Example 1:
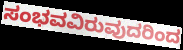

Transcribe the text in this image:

ಸಂಭವವಿರುವುದರಿಂದ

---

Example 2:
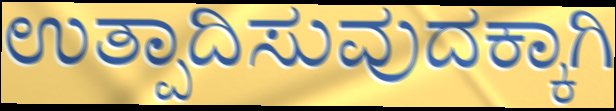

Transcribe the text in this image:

ಉತ್ಪಾದಿಸುವುದಕ್ಕಾಗಿ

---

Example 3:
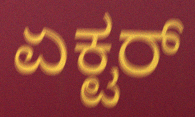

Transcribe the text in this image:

ಏಕ್ಟರ್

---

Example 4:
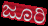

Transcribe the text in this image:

ಜೂರಿ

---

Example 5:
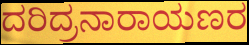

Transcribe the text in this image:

ದರಿದ್ರನಾರಾಯಣರ